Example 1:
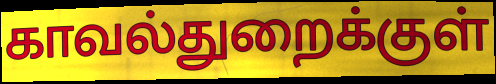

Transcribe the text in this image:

காவல்துறைக்குள்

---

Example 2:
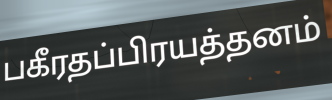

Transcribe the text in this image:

பகீரதப்பிரயத்தனம்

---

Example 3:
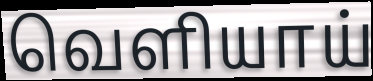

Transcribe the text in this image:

வெளியாய்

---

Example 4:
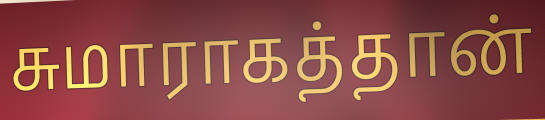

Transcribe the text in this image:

சுமாராகத்தான்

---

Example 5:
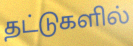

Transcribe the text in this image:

தட்டுகளில்